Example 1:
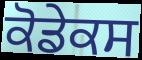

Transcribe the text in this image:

ਕੋਡੇਕਸ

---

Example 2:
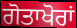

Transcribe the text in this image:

ਗੋਤਾਖੋਰਾਂ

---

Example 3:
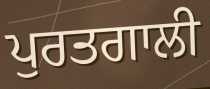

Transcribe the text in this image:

ਪੁਰਤਗਾਲੀ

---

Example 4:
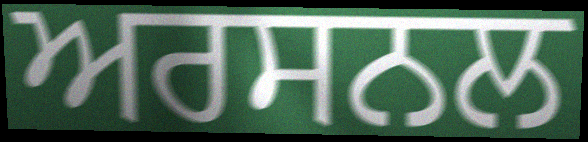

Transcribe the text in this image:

ਅਰਸਨਲ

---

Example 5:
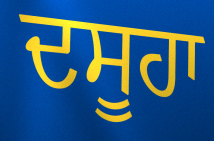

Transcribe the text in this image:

ਦਸੂਹਾ